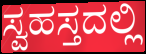
ಸ್ವಹಸ್ತದಲ್ಲಿ